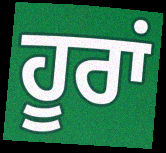
ਹੂਰਾਂ